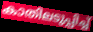
കാതിലടുപ്പിച്ച്